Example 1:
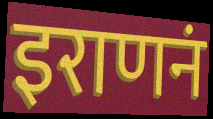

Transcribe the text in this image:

इराणनं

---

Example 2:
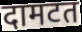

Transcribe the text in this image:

दामटत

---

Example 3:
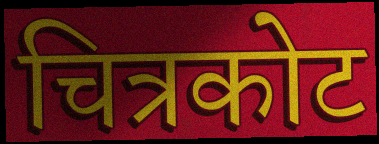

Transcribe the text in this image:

चित्रकोट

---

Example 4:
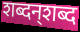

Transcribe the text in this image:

शब्दन्‌शब्द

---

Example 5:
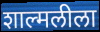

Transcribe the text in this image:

शाल्मलीला